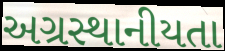
અગ્રસ્થાનીયતા